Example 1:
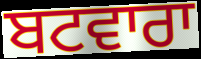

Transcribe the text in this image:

ਬਟਵਾਰਾ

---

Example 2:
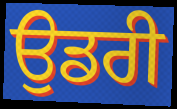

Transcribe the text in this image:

ਉਡਰੀ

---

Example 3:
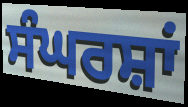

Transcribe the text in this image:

ਸੰਘਰਸ਼ਾਂ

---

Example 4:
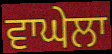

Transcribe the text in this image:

ਵਾਘੇਲਾ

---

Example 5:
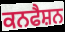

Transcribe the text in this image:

ਕਨਫੈਸ਼ਨ